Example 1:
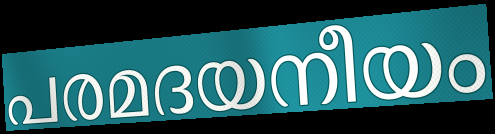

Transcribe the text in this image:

പരമദയനീയം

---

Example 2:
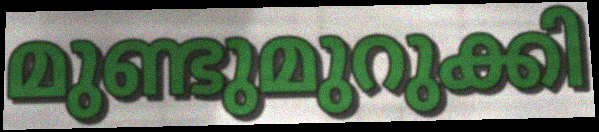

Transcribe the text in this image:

മുണ്ടുമുറുക്കി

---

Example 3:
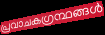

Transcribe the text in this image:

പ്രവാചകഗ്രന്ഥങ്ങൾ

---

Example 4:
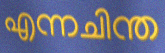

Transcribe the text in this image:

എന്നചിന്ത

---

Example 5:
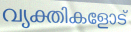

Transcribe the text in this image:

വ്യക്തികളോട്